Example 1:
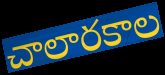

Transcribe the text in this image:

చాలారకాల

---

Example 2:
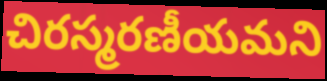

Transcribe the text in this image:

చిరస్మరణీయమని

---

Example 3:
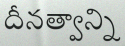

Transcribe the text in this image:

దీనత్వాన్ని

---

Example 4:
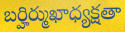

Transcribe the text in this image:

బర్హిర్ముఖాధ్యక్షతా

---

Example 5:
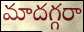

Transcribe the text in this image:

మాదగ్గరా